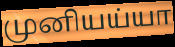
முனியய்யா